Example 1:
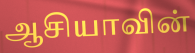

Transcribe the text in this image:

ஆசியாவின்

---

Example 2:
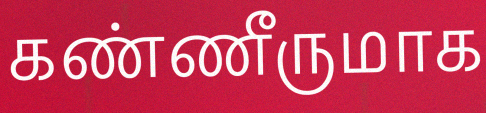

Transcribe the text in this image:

கண்ணீருமாக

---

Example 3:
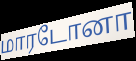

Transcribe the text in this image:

மாரடோனா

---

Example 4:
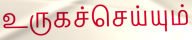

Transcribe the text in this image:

உருகச்செய்யும்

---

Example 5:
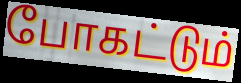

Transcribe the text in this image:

போகட்டும்